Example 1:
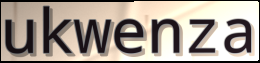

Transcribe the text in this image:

ukwenza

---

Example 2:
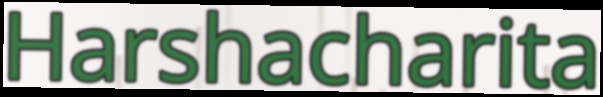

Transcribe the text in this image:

Harshacharita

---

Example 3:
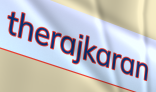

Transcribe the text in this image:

therajkaran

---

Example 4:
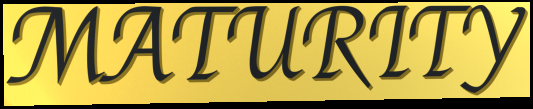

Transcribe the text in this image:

MATURITY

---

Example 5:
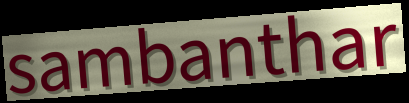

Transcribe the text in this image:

sambanthar